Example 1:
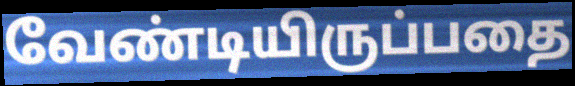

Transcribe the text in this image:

வேண்டியிருப்பதை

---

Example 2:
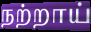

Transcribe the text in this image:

நற்றாய்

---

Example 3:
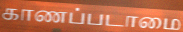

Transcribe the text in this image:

காணப்படாமை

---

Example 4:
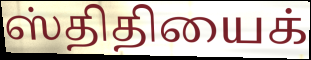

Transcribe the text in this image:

ஸ்திதியைக்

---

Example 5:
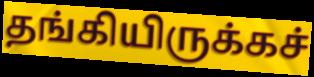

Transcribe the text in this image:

தங்கியிருக்கச்